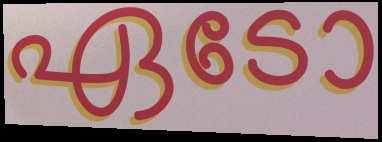
ഏടോ